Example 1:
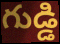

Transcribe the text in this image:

గుడ్డి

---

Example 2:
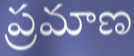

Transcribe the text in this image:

ప్రమాణ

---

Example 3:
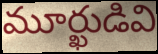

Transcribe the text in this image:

మూర్ఖుడివి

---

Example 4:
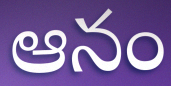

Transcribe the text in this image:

ఆనం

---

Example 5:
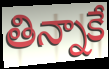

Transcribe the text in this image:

తిన్నాకే